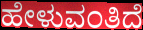
ಹೇಳುವಂತಿದೆ